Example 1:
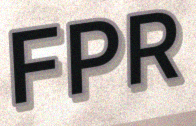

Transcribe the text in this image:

FPR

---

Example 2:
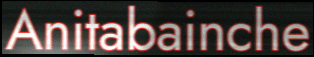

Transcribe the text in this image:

Anitabainche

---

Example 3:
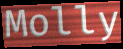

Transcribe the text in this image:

Molly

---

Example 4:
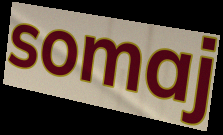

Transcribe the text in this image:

somaj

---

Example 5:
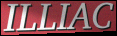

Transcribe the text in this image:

ILLIAC